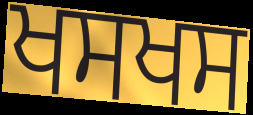
ਖਸਖਸ